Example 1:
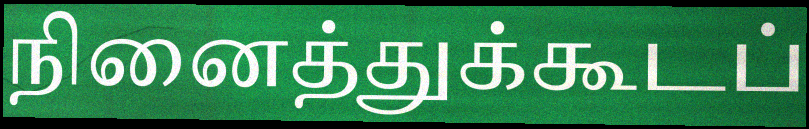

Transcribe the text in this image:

நினைத்துக்கூடப்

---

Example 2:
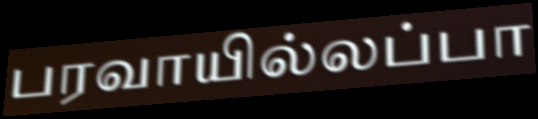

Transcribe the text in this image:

பரவாயில்லப்பா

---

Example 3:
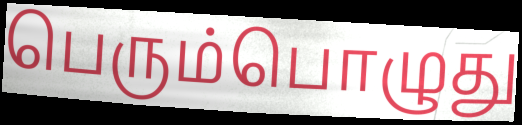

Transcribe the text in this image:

பெரும்பொழுது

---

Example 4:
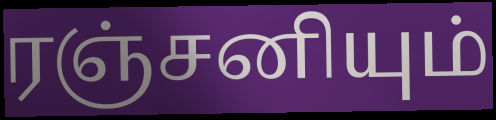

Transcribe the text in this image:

ரஞ்சனியும்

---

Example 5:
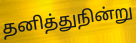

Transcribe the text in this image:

தனித்துநின்று